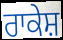
ਰਾਕੇਸ਼